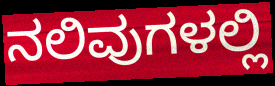
ನಲಿವುಗಳಲ್ಲಿ